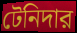
টেনিদার